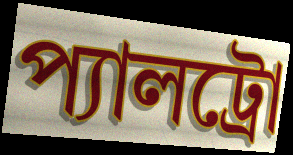
প্যালট্রো